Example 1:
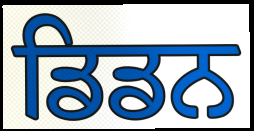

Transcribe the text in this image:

ਡਿਡਨ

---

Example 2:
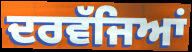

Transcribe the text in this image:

ਦਰਵੱਜਿਆਂ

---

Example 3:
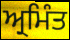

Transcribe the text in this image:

ਅ੍ਰਮਿੰਤ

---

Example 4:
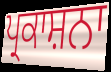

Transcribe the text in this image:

ਪ੍ਰਕਾਸ਼ਨਾ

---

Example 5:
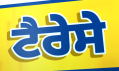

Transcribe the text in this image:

ਟੈਰੇਸੇ